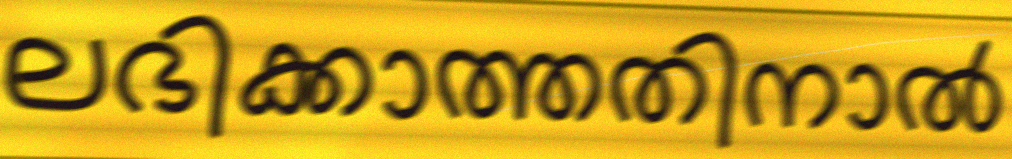
ലഭിക്കാത്തതിനാൽ